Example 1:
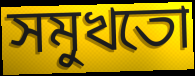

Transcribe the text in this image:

সমুখতো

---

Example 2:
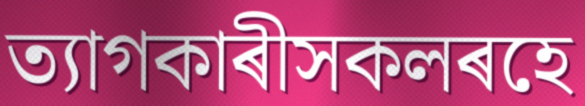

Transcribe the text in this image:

ত্যাগকাৰীসকলৰহে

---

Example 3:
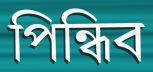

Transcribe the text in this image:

পিন্ধিব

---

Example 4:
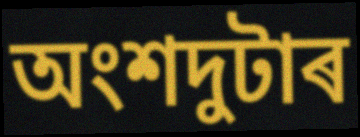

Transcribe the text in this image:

অংশদুটাৰ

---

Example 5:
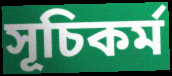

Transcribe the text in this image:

সূচিকৰ্ম